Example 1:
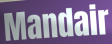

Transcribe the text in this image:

Mandair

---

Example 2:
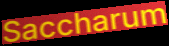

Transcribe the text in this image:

Saccharum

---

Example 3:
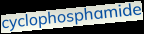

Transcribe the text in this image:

cyclophosphamide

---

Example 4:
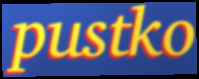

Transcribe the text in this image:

pustko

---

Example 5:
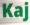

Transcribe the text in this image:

Kaj